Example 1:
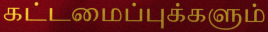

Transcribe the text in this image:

கட்டமைப்புக்களும்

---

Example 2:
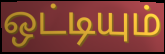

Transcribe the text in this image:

ஒட்டியும்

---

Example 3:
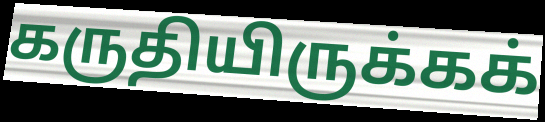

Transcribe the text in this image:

கருதியிருக்கக்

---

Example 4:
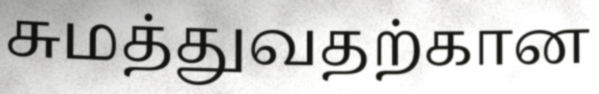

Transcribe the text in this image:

சுமத்துவதற்கான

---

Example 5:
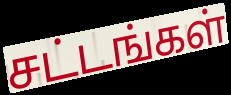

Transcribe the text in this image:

சட்டங்கள்